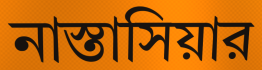
নাস্তাসিয়ার